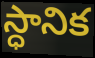
స్ధానిక